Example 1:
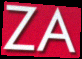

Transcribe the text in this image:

ZA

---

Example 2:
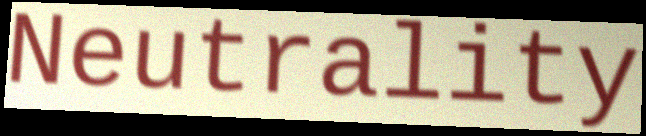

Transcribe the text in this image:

Neutrality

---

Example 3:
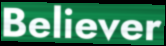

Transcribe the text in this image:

Believer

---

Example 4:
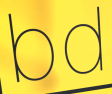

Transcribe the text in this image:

bd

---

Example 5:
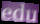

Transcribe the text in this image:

edu